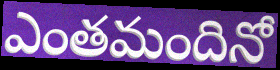
ఎంతమందినో